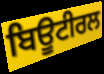
ਬਿਊਟੀਰਲ